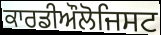
ਕਾਰਡੀਔਲੋਜਿਸਟ